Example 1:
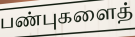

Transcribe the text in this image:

பண்புகளைத்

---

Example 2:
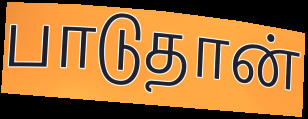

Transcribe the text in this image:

பாடுதான்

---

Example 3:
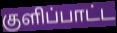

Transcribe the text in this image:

குளிப்பாட்ட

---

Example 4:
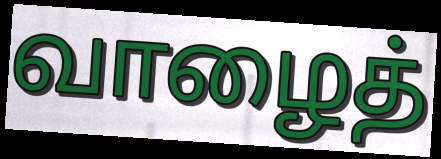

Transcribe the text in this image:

வாழைத்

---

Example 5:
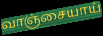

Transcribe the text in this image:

வாஞ்சையாய்